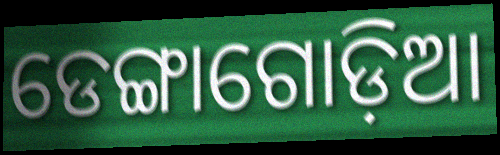
ଡେଙ୍ଗାଗୋଡ଼ିଆ